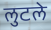
लुटले